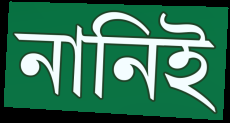
নানিই